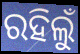
ରହିଲୁଁ